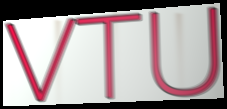
VTU